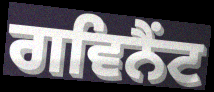
ਗਵਿਨੈਂਟ